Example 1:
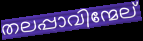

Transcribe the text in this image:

തലപ്പാവിന്മേല്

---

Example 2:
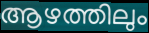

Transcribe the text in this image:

ആഴത്തിലും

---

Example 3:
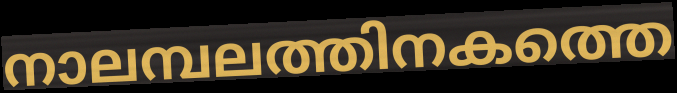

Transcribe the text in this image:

നാലമ്പലത്തിനകത്തെ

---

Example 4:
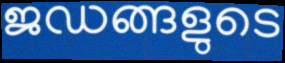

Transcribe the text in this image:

ജഡങ്ങളുടെ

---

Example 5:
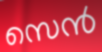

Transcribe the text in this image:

സെൻ